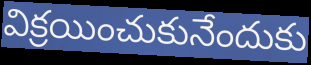
విక్రయించుకునేందుకు